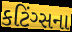
કટિંગ્સના